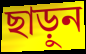
ছাড়ুন